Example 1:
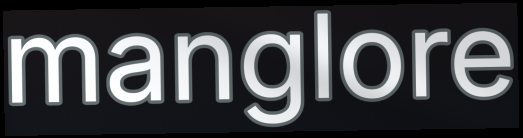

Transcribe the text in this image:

manglore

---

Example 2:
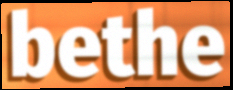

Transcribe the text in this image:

bethe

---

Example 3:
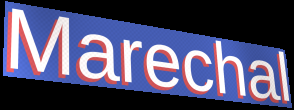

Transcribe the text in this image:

Marechal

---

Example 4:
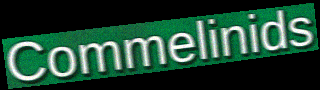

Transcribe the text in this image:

Commelinids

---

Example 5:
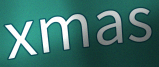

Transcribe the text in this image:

xmas